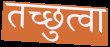
तच्छुत्वा